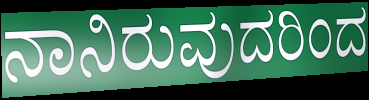
ನಾನಿರುವುದರಿಂದ